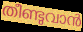
തീണ്ടുവാൻ